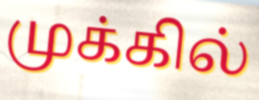
முக்கில்